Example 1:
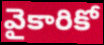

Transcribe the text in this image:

వైకారికో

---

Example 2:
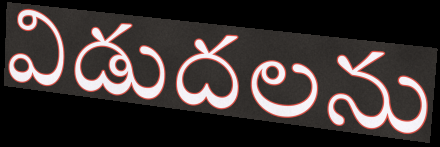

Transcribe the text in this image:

విడుదలను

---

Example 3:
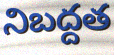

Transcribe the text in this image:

నిబద్దత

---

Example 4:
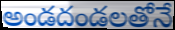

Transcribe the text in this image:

అండదండలతోనే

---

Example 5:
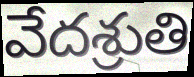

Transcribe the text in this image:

వేదశ్రుతి